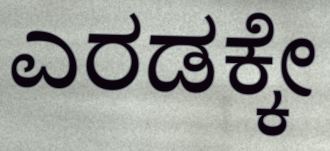
ಎರಡಕ್ಕೇ